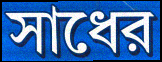
সাধের